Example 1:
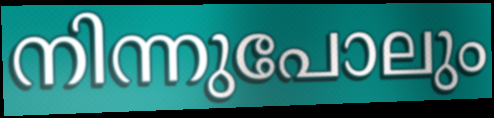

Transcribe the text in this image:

നിന്നുപോലും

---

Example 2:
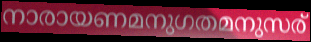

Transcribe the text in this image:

നാരായണമനുഗതമനുസര്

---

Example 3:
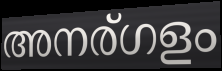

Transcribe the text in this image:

അനര്ഗളം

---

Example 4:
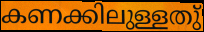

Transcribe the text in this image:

കണക്കിലുള്ളതു്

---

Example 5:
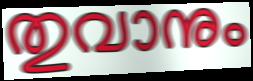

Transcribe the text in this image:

തുവാനും